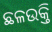
ଛଳଉକ୍ତି